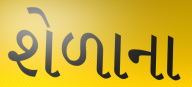
શેળાના